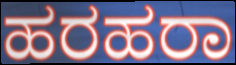
ಹರಹರಾ